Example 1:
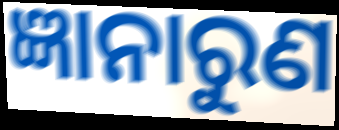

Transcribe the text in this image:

ଜ୍ଞାନାରୁଣ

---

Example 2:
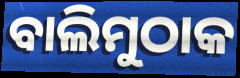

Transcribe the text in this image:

ବାଲିମୁଠାକ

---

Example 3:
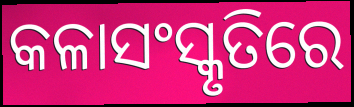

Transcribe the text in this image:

କଳାସଂସ୍କୃତିରେ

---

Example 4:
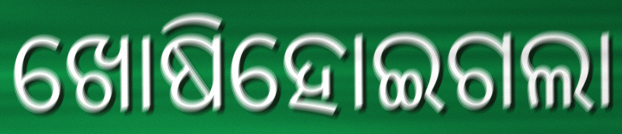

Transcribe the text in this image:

ଖୋଷିହୋଇଗଲା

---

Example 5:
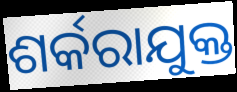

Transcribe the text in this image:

ଶର୍କରାଯୁକ୍ତ